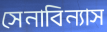
সেনাবিন্যাস